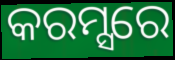
କରମ୍ସରେ